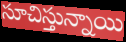
సూచిస్తున్నాయి